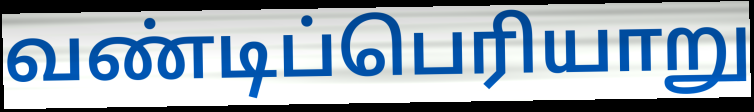
வண்டிப்பெரியாறு